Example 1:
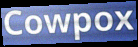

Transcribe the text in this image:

Cowpox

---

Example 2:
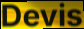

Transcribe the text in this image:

Devis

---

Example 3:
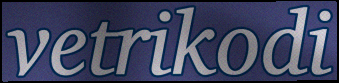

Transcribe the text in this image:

vetrikodi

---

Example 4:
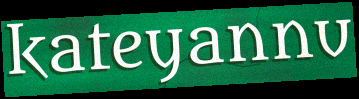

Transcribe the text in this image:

kateyannu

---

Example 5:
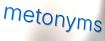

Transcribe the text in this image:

metonyms